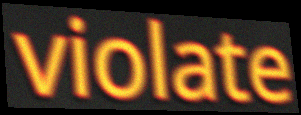
violate